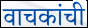
वाचकांची